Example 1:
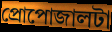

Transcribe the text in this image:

প্রোপোজালটা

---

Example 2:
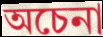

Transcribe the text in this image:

অচেনা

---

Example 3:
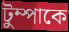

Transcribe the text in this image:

টুম্পাকে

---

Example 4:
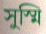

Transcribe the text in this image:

সুস্মি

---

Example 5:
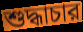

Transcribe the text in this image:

শুদ্ধাচার